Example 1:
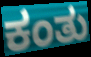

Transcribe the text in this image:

ಕಂತು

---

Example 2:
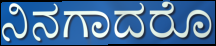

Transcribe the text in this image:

ನಿನಗಾದರೊ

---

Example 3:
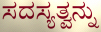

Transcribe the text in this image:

ಸದಸ್ಯತ್ವನ್ನು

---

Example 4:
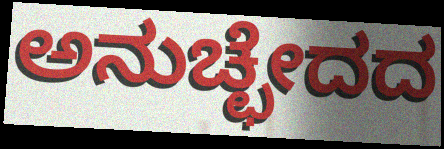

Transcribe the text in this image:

ಅನುಚ್ಛೇದದ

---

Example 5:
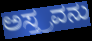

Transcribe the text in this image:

ಅಸ್ತ್ರವನು